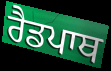
ਰੈਡਪਾਥ